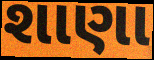
શાણા